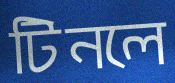
টিনলে